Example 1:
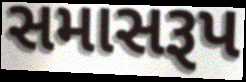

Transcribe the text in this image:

સમાસરૂપ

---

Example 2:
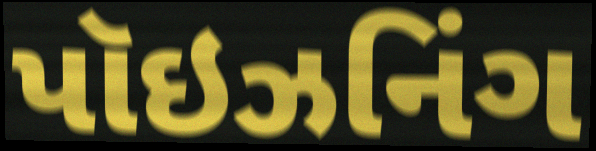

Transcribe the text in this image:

પૉઇઝનિંગ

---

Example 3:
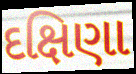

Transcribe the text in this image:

દક્ષિણા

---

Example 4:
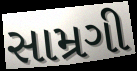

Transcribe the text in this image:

સામ્રગી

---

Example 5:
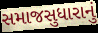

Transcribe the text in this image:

સમાજસુધારાનું